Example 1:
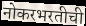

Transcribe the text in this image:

नोकरभरतीची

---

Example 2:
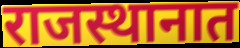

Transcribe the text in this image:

राजस्थानात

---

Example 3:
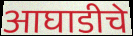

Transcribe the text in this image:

आघाडीचे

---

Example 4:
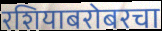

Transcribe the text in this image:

रशियाबरोबरचा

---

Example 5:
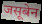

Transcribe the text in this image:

जसूबेन